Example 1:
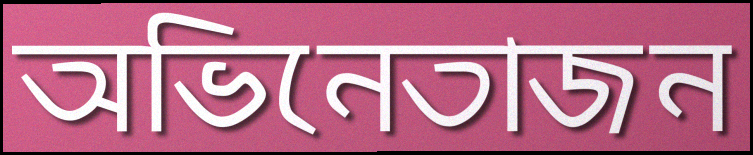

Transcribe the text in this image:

অভিনেতাজন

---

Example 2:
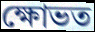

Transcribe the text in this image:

ক্ষোভত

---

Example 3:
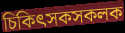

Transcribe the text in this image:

চিকিৎসকসকলক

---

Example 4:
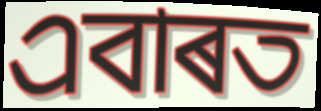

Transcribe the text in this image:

এবাৰত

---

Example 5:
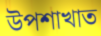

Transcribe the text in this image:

উপশাখাত